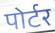
पोर्टर